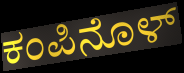
ಕಂಪಿನೊಳ್